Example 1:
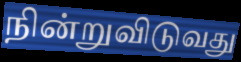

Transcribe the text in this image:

நின்றுவிடுவது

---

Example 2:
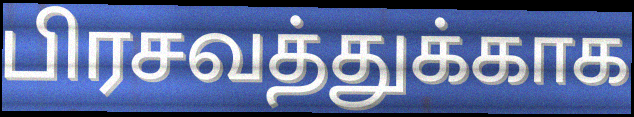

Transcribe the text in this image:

பிரசவத்துக்காக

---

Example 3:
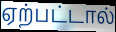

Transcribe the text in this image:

ஏற்பட்டால்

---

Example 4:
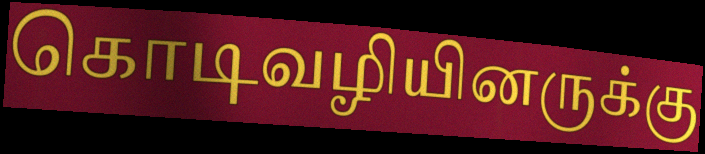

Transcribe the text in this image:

கொடிவழியினருக்கு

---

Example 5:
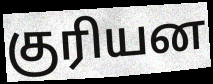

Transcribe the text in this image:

குரியன